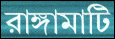
রাঙ্গামাটি